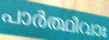
പാർത്ഥിവാഃ